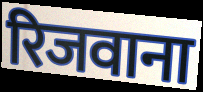
रिजवाना